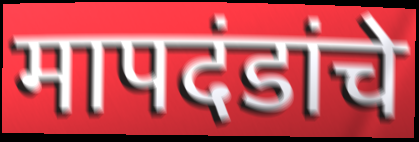
मापदंडांचे